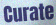
Curate